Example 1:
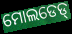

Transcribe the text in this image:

ମୋଲଡେଡ୍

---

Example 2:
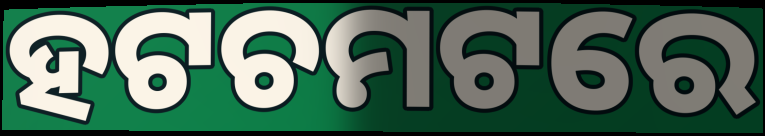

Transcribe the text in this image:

ହଟଚମଟରେ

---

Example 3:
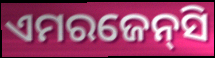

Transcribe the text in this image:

ଏମରଜେନ୍‌ସି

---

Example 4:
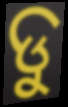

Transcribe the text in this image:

ଡୁ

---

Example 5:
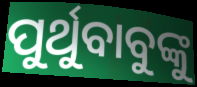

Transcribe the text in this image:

ପୁର୍ଥୁବାବୁଙ୍କୁ